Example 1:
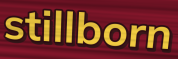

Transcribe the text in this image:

stillborn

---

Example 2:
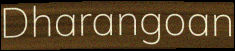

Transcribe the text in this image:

Dharangoan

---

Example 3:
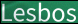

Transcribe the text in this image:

Lesbos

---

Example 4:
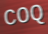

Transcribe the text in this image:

COQ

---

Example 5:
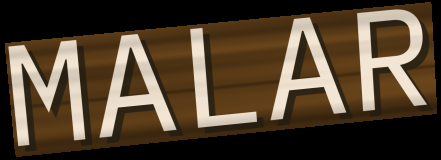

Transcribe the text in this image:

MALAR